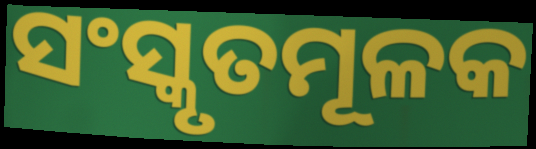
ସଂସ୍କୃତମୂଳକ